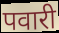
पवारी